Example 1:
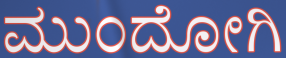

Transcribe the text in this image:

ಮುಂದೋಗಿ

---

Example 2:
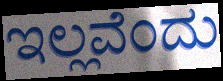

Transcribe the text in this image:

ಇಲ್ಲವೆಂದು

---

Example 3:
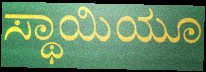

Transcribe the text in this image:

ಸ್ಥಾಯಿಯೂ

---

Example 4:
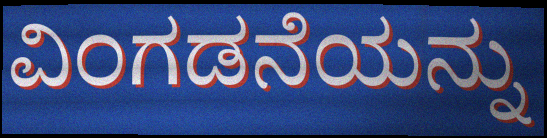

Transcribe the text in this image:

ವಿಂಗಡನೆಯನ್ನು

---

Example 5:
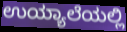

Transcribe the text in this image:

ಉಯ್ಯಾಲೆಯಲ್ಲಿ